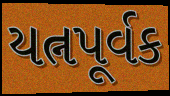
યત્નપૂર્વક